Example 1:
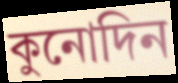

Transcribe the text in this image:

কুনোদিন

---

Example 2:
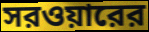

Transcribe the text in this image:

সরওয়ারের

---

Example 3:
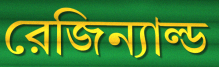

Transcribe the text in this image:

রেজিন্যাল্ড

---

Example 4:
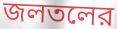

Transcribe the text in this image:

জলতলের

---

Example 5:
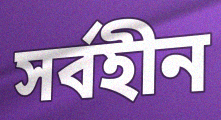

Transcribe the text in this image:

সর্বহীন